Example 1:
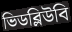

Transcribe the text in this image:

ভিডব্লিউবি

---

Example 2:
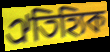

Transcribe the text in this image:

ঐতিহ্যিক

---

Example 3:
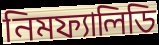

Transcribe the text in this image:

নিমফ্যালিডি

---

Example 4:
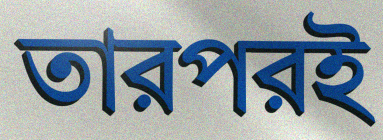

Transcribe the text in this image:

তারপরই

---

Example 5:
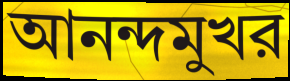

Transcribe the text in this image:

আনন্দমুখর